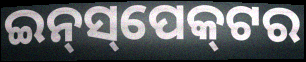
ଇନ୍‌ସ୍‌ପେକ୍‌ଟର